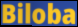
Biloba